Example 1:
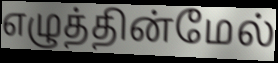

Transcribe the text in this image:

எழுத்தின்மேல்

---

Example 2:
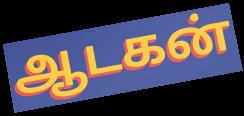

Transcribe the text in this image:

ஆடகன்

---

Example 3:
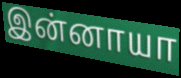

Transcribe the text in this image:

இன்னாயா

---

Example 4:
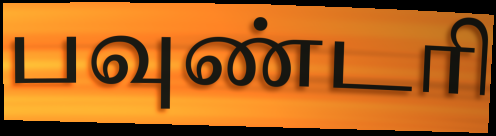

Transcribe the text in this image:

பவுண்டரி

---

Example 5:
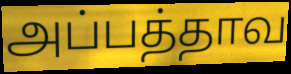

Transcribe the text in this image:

அப்பத்தாவ